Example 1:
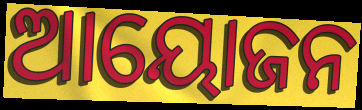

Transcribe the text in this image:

ଆୟୋଜନ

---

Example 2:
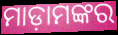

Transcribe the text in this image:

ମାଡ଼ାମଙ୍କର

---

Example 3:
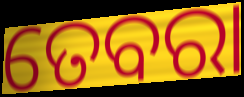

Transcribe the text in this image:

ତେବରା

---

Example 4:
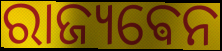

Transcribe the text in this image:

ରାଜ୍ୟଵେନ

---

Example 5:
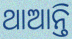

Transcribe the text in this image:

ଥାଆନ୍ତି